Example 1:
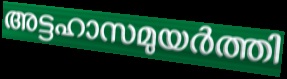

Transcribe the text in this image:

അട്ടഹാസമുയർത്തി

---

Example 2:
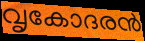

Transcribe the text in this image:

വൃകോദരൻ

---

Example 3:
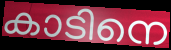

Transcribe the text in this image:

കാടിനെ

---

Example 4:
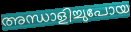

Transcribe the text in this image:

അന്ധാളിച്ചുപോയ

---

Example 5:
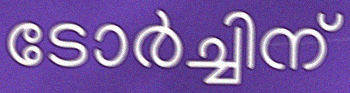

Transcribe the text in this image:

ടോർച്ചിന്